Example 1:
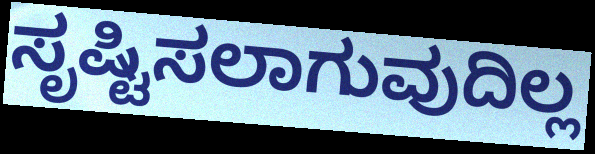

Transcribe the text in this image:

ಸೃಷ್ಟಿಸಲಾಗುವುದಿಲ್ಲ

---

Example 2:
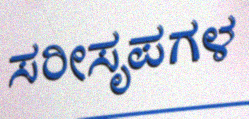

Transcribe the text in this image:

ಸರೀಸೃಪಗಳ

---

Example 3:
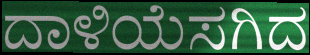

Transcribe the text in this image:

ದಾಳಿಯೆಸಗಿದ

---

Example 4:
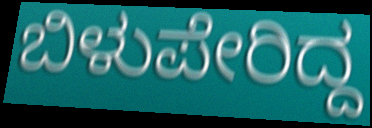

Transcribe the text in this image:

ಬಿಳುಪೇರಿದ್ದ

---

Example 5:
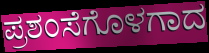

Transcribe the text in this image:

ಪ್ರಶಂಸೆಗೊಳಗಾದ